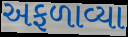
અફળાવ્યા